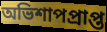
অভিশাপপ্রাপ্ত